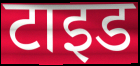
टाइड